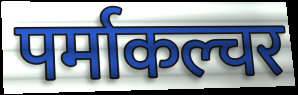
पर्माकल्चर